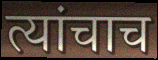
त्यांचाच